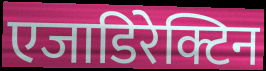
एजाडिरेक्टिन